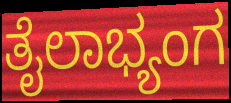
ತೈಲಾಭ್ಯಂಗ